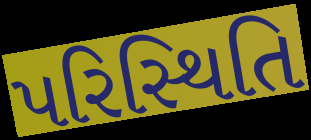
પરિસ્‍થિતિ